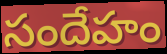
సందేహం